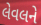
લેવલને